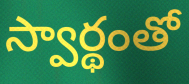
స్వార్థంతో